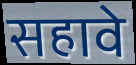
सहावे